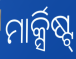
ମାର୍କ୍ସିଷ୍ଟ୍